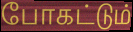
போகட்டும்